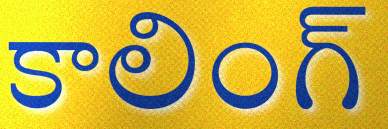
కాలింగ్